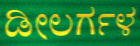
ಡೀಲರ್ಗಳ